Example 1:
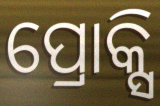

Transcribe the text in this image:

ପ୍ରୋକ୍ସି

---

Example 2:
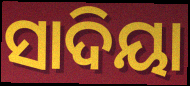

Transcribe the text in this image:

ସାଦିୟା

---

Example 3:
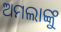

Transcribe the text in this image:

ଅମଲାଙ୍କୁ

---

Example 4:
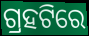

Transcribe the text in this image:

ଗ୍ରହଟିରେ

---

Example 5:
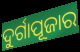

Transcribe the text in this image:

ଦୁର୍ଗାପୂଜାର